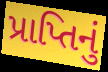
પ્રાપ્‍તિનું